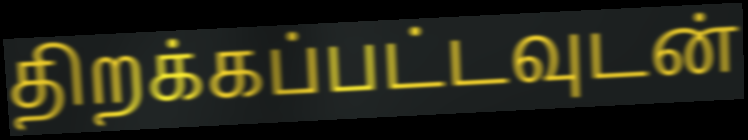
திறக்கப்பட்டவுடன்